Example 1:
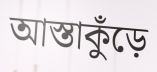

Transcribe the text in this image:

আস্তাকুঁড়ে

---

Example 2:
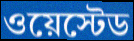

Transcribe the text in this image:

ওয়েস্টেড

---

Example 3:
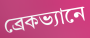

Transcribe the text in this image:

ব্রেকভ্যানে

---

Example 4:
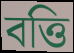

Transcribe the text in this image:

বত্তি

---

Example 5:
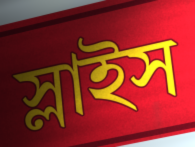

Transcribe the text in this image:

স্লাইস